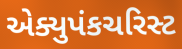
એક્યુપંકચરિસ્ટ